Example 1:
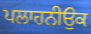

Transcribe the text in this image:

ਪਲਾਹਨੀਉਕ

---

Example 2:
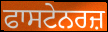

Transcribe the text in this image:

ਫਾਸਟੇਨਰਜ਼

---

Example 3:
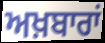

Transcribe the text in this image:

ਅਖ਼ਬਾਰਾਂ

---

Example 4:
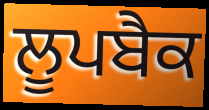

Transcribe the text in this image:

ਲੂਪਬੈਕ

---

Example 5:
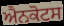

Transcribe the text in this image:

ਐਨਕੋਟਸ